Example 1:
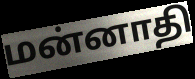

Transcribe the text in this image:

மன்னாதி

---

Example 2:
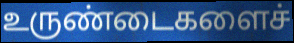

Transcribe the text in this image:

உருண்டைகளைச்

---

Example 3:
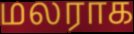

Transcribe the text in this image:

மலராக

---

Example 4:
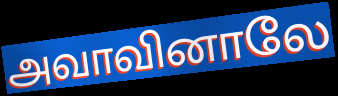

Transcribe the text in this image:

அவாவினாலே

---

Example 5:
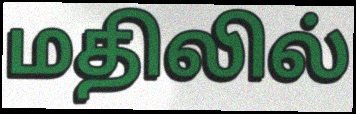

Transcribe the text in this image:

மதிலில்